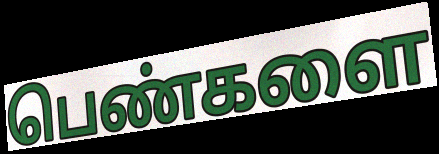
பெண்களை